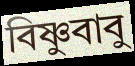
বিষ্ণুবাবু